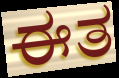
ಈತ